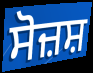
ਸੋਜ਼ਸ਼